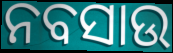
ନବସାଉ